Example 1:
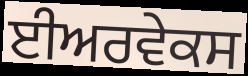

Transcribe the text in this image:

ਈਅਰਵੇਕਸ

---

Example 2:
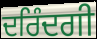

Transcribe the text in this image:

ਦਰਿੰਦਗੀ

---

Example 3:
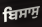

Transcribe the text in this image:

ਬਿਸਾਸੁ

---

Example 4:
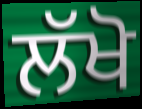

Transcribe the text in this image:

ਲੱਖੋ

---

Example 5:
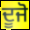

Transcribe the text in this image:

ਦੂਜੋ